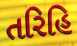
તરિહિ